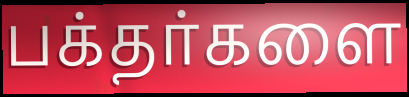
பக்தர்களை